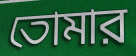
তোমার